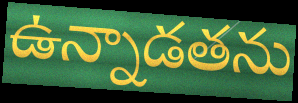
ఉన్నాడతను